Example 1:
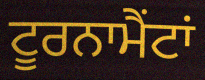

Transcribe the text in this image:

ਟੂਰਨਾਮੈਂਟਾਂ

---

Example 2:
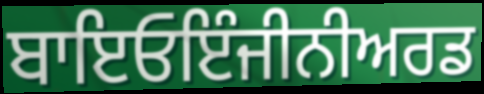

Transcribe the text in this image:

ਬਾਇਓਇੰਜੀਨੀਅਰਡ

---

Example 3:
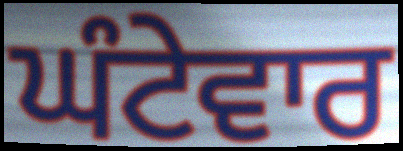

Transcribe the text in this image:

ਘੰਟੇਵਾਰ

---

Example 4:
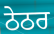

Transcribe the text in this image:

ਠੇਠਰ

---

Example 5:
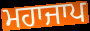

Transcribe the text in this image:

ਮਹਾਜਾਪ